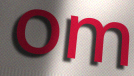
om